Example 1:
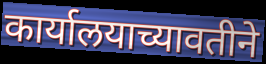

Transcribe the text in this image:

कार्यालयाच्यावतीने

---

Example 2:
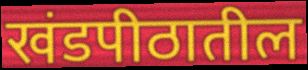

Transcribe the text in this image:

खंडपीठातील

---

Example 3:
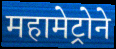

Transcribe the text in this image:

महामेट्रोने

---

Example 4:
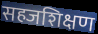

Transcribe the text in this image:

सहजशिक्षण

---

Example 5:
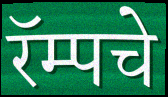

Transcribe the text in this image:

रॅम्पचे